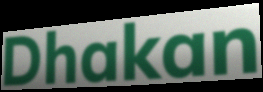
Dhakan